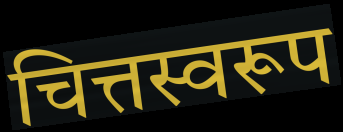
चित्तस्वरूप